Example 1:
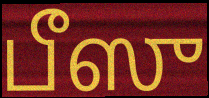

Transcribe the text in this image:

பீஸு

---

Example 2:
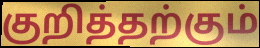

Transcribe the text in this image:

குறித்தற்கும்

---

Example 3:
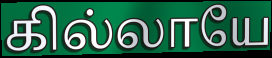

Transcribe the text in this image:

கில்லாயே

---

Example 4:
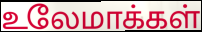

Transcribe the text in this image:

உலேமாக்கள்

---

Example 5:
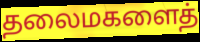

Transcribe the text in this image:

தலைமகளைத்